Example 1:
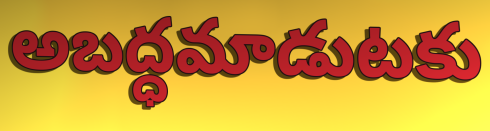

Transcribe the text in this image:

అబద్ధమాడుటకు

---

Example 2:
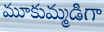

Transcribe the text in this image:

మూకుమ్మడిగా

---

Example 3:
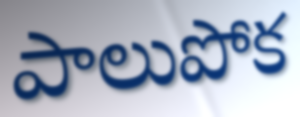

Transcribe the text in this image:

పాలుపోక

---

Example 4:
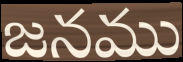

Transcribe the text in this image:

జనము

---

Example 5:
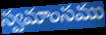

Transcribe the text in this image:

స్వమాంసము